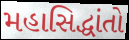
મહાસિદ્ધાંતો